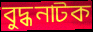
বুদ্ধনাটক